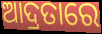
ଆଦ୍ରତାରେ